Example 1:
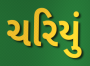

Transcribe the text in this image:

ચરિયું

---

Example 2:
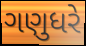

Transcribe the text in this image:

ગણુધરે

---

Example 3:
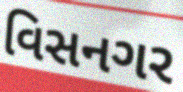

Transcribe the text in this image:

વિસનગર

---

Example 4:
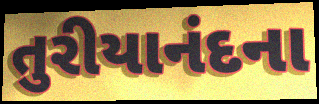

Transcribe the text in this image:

તુરીયાનંદના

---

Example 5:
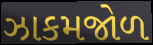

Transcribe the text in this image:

ઝાકમજોળ